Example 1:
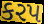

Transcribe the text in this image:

કરપ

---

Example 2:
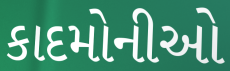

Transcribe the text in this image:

કાદમોનીઓ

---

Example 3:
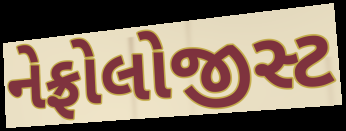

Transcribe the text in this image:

નેફ્રોલોજીસ્ટ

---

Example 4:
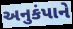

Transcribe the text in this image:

અનુકંપાને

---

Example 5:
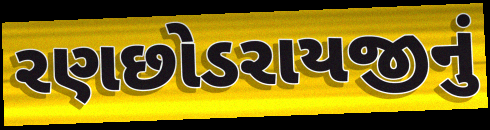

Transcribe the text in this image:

રણછોડરાયજીનું